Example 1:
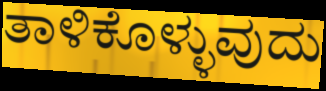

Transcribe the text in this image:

ತಾಳಿಕೊಳ್ಳುವುದು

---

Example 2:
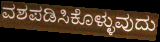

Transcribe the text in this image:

ವಶಪಡಿಸಿಕೊಳ್ಳುವುದು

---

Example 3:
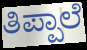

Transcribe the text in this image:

ತಿಪ್ಪಾಲೆ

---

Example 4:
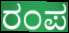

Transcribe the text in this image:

ರಂಪ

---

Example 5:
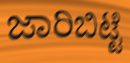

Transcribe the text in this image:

ಜಾರಿಬಿಟ್ಟೆ